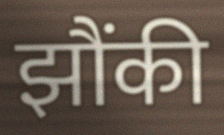
झौंकी